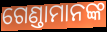
ଗେଣ୍ଡାମାନଙ୍କ